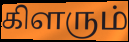
கிளரும்